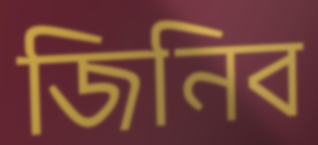
জিনিব